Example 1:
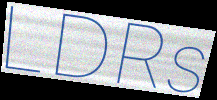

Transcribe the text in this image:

LDRs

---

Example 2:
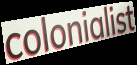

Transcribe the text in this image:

colonialist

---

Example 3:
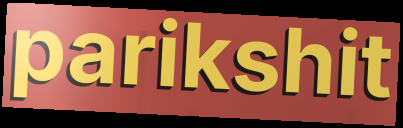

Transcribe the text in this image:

parikshit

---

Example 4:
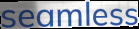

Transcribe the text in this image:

seamless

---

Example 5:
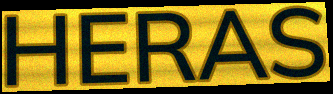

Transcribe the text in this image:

HERAS